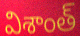
విశాంత్